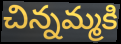
చిన్నమ్మకి